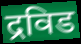
द्रविड